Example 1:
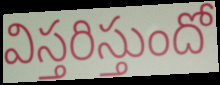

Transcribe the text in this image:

విస్తరిస్తుందో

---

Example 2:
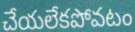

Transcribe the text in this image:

చేయలేకపోవటం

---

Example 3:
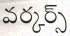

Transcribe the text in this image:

వర్కర్స్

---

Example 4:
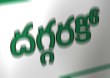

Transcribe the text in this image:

దగ్గరకో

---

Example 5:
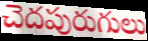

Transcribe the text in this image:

చెదపురుగులు